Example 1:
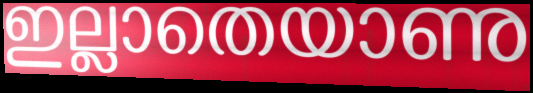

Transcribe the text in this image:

ഇല്ലാതെയാണു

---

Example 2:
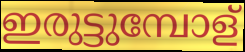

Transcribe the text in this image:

ഇരുട്ടുമ്പോള്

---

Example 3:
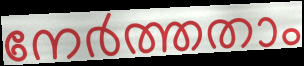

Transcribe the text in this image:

നേർത്തതാം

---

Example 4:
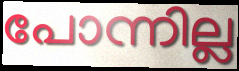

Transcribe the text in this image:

പോന്നില്ല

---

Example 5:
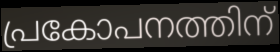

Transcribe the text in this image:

പ്രകോപനത്തിന്